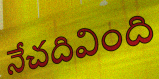
నేచదివింది